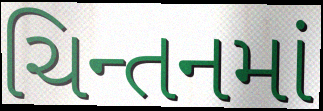
ચિન્તનમાં